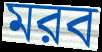
মরব